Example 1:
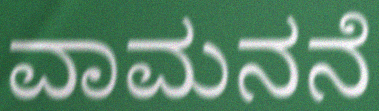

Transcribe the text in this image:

ವಾಮನನೆ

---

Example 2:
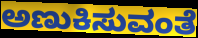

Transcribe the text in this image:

ಅಣುಕಿಸುವಂತೆ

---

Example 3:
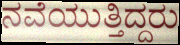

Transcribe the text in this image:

ನವೆಯುತ್ತಿದ್ದರು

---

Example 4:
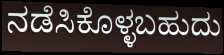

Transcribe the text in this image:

ನಡೆಸಿಕೊಳ್ಳಬಹುದು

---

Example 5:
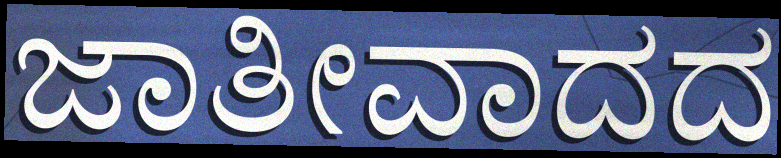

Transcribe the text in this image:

ಜಾತೀವಾದದ